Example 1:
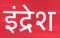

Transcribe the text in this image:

इंद्रेश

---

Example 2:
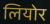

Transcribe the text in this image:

लियोर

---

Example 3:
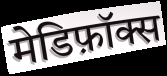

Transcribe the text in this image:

मेडिफ़ॉक्स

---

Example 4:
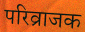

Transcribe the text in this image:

परिव्राजक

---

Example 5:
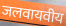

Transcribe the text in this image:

जलवायवीय